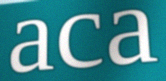
aca